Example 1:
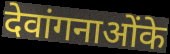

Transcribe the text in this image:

देवांगनाओंके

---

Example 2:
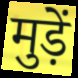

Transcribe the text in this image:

मुड़ें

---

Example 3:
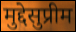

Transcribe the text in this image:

मुद्देसुप्रीम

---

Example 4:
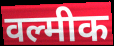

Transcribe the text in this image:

वल्मीक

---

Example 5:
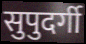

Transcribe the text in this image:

सुपुदर्गी